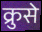
क्रुसे